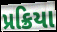
પ્રક્રિયા